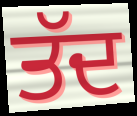
ਤੱਦ